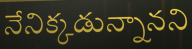
నేనిక్కడున్నానని